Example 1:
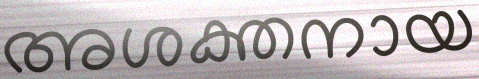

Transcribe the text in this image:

അശക്തനായ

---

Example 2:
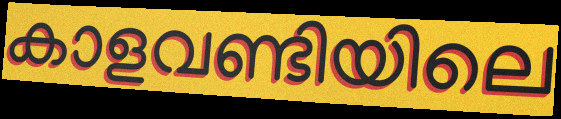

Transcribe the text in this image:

കാളവണ്ടിയിലെ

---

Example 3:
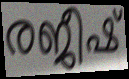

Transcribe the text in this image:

രജീഷ്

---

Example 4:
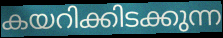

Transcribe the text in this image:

കയറിക്കിടക്കുന്ന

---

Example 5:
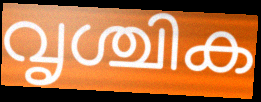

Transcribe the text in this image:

വൃശ്ചിക